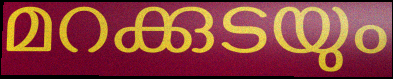
മറക്കുടയും